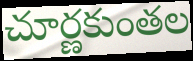
చూర్ణకుంతల